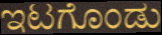
ಇಟಗೊಂಡು